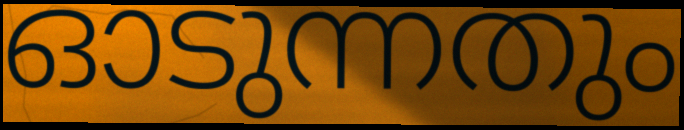
ഓടുന്നതും